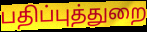
பதிப்புத்துறை